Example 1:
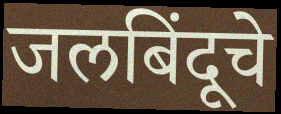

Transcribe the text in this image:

जलबिंदूचे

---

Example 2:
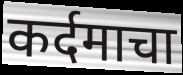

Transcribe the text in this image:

कर्दमाचा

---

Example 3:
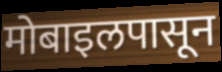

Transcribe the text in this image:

मोबाइलपासून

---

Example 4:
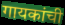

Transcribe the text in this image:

गायकांची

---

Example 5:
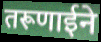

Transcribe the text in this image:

तरूणाईने